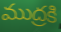
ముద్రకి